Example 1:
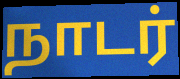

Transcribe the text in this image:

நாடர்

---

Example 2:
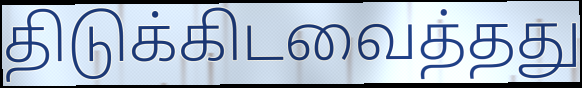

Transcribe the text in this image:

திடுக்கிடவைத்தது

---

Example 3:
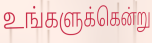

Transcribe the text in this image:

உங்களுக்கென்று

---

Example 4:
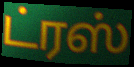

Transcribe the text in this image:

ட்ரஸ்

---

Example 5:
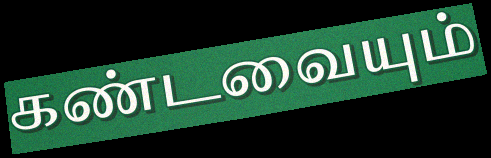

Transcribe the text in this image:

கண்டவையும்